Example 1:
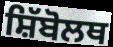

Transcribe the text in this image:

ਸ਼ਿੱਬੋਲਥ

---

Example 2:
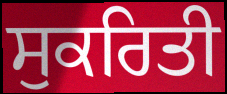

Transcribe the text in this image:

ਸੁਕਰਿਤੀ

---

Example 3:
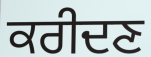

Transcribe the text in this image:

ਕਰੀਦਣ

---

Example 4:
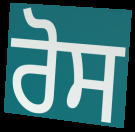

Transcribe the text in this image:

ਰੋਸ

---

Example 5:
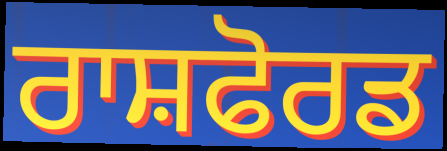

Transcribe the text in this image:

ਰਾਸ਼ਫੋਰਡ